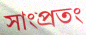
সাংপ্রতং